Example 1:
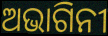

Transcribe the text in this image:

ଅଭାଗିନୀ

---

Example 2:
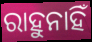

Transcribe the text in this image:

ରାହୁନାହିଁ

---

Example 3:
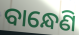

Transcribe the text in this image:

ବାନ୍ଧେଣି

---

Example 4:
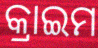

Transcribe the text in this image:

କ୍ରାଇମ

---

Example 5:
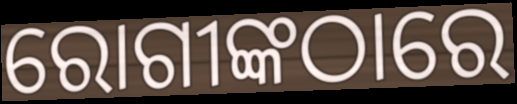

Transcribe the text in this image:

ରୋଗୀଙ୍କଠାରେ